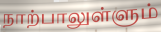
நாற்பாலுள்ளும்